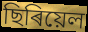
ছিৰিয়েল